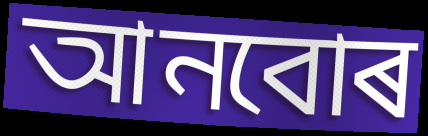
আনবোৰ